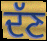
ਦੱਣ